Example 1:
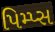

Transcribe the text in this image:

પિમ્પ્સ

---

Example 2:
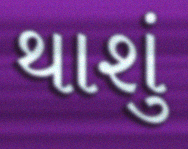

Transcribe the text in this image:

થાશું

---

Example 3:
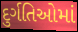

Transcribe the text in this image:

દુર્ગતિઓમાં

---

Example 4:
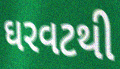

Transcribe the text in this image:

ઘરવટથી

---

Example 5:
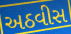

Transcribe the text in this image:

અઠવીસ